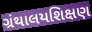
ગ્રંથાલયશિક્ષણ